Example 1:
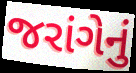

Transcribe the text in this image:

જરાંગેનું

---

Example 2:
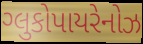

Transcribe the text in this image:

ગ્લુકોપાયરેનોઝ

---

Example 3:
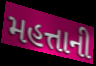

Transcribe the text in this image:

મહત્તાની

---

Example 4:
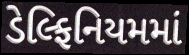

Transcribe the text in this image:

ડેલ્ફિનિયમમાં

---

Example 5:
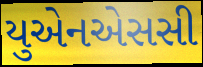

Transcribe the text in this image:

યુએનએસસી